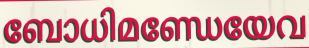
ബോധിമണ്ഡേയേവ